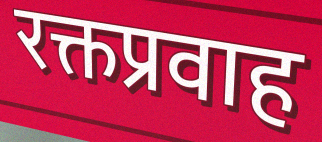
रक्तप्रवाह